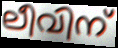
ലീവിന്